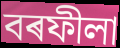
বৰফীলা